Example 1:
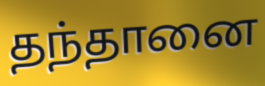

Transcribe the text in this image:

தந்தானை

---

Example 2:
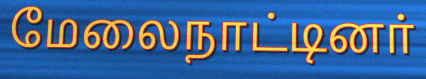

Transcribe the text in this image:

மேலைநாட்டினர்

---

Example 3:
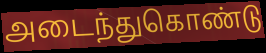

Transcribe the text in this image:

அடைந்துகொண்டு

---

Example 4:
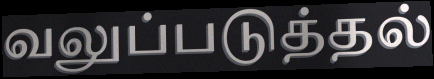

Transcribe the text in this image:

வலுப்படுத்தல்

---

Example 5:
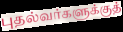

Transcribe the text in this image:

புதல்வர்களுக்குத்